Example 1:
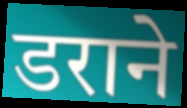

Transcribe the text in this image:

डराने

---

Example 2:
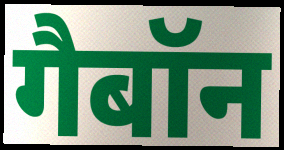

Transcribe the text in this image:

गैबॉन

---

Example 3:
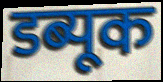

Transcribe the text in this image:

डब्यूक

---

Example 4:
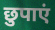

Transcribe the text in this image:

छुपाएं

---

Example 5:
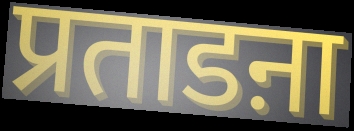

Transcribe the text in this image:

प्रताडऩा